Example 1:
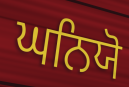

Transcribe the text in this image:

ਘਨਿਯੋ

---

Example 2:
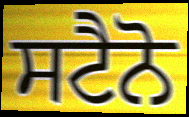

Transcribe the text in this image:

ਸਟੈਨੋ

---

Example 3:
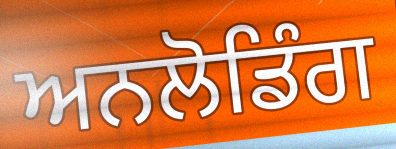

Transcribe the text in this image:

ਅਨਲੋਡਿੰਗ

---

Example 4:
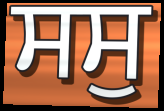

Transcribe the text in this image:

ਸਸੁ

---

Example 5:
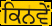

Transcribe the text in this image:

ਕਿਨਵੇਂ